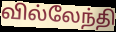
வில்லேந்தி